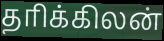
தரிக்கிலன்